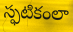
స్ఫటికంలా